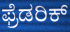
ಫ್ರೆಡರಿಕ್